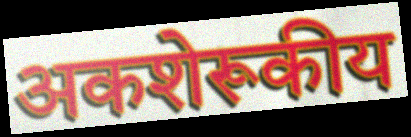
अकशेरूकीय